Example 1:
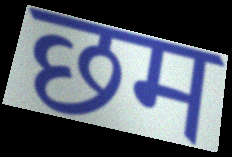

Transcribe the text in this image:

छम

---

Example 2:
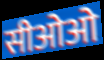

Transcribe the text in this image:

सीओओ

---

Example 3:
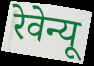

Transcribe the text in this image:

रेवेन्यू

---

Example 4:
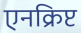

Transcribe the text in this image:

एनक्रिप्ट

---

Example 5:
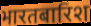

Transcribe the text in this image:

भारतबारिश